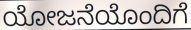
ಯೋಜನೆಯೊಂದಿಗೆ